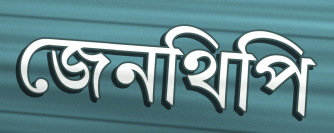
জেনথিপি